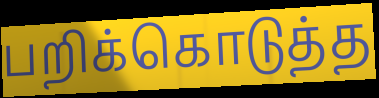
பறிக்கொடுத்த